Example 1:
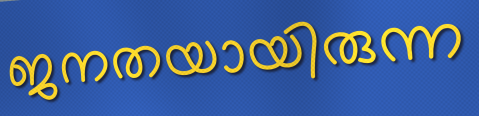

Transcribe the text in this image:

ജനതയായിരുന്ന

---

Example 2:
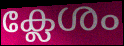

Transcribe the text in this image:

ക്ലേശം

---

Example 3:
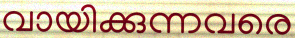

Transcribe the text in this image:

വായിക്കുന്നവരെ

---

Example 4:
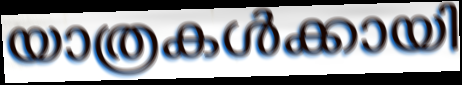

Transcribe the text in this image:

യാത്രകൾക്കായി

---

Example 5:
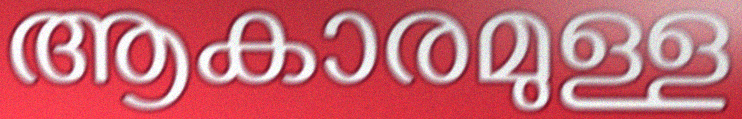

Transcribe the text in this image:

ആകാരമുള്ള